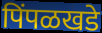
पिंपळखडे